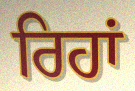
ਰਿਹਾਂ